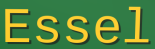
Essel